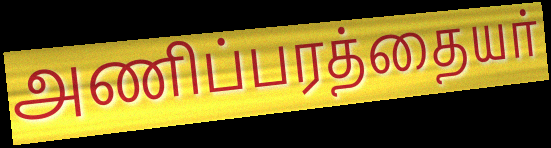
அணிப்பரத்தையர்